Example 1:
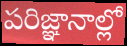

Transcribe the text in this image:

పరిజ్ఞానాల్లో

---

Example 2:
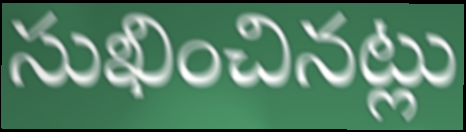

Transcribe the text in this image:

సుఖించినట్లు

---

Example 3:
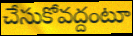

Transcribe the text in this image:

చేసుకోవద్దంటూ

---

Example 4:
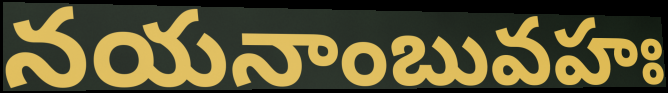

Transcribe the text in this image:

నయనాంబువహః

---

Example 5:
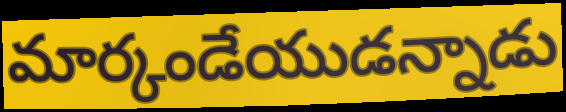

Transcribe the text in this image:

మార్కండేయుడన్నాడు